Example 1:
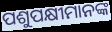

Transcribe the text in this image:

ପଶୁପକ୍ଷୀମାନଙ୍କ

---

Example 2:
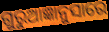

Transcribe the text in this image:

ଗୁରୁଆଜ୍ଞାନୁସାରେ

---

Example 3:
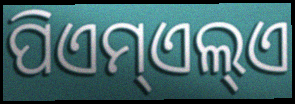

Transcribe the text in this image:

ପିଏମ୍ଏଲ୍ଏ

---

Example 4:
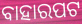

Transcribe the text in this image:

ବାହାରପଟ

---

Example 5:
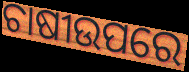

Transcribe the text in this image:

ଚାଷୀଉପରେ